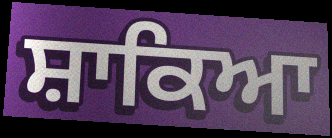
ਸ਼ਾਕਿਆ